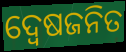
ଦ୍ଵେଷଜନିତ